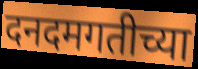
दनदमगतीच्या